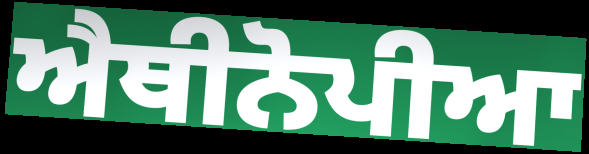
ਐਥੀਨੋਪੀਆ